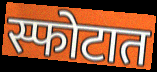
स्फोटात